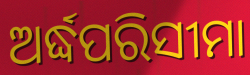
ଅର୍ଦ୍ଧପରିସୀମା